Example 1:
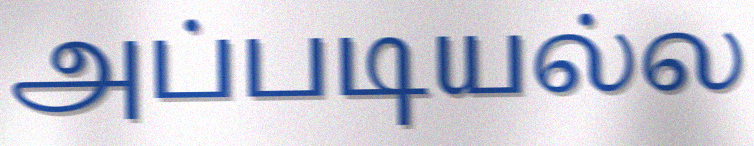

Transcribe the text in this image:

அப்படியல்ல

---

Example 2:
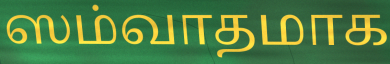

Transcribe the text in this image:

ஸம்வாதமாக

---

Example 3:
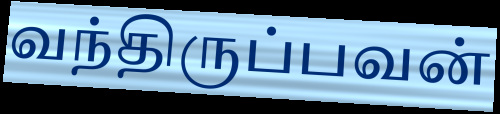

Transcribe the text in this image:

வந்திருப்பவன்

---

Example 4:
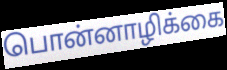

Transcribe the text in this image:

பொன்னாழிக்கை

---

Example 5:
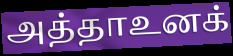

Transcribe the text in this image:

அத்தாஉனக்